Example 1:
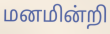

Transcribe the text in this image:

மனமின்றி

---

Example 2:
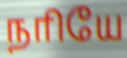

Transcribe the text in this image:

நரியே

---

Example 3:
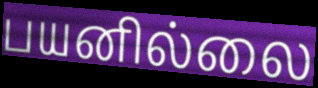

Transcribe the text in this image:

பயனில்லை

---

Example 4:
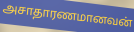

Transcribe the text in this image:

அசாதாரணமானவன்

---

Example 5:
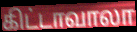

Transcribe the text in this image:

கிட்டாவாலா